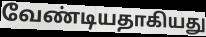
வேண்டியதாகியது